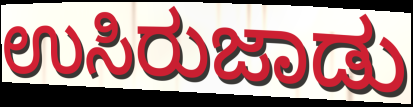
ಉಸಿರುಜಾಡು